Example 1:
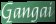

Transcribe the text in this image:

Gangai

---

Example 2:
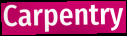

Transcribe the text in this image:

Carpentry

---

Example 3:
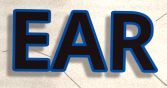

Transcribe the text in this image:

EAR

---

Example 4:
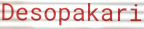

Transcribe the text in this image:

Desopakari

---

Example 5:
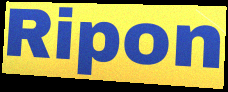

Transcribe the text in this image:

Ripon